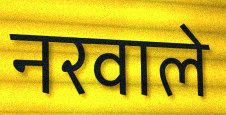
नरवाले